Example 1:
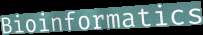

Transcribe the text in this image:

Bioinformatics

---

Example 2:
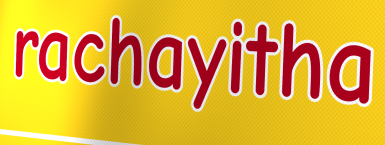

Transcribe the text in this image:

rachayitha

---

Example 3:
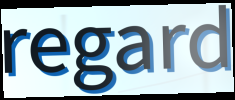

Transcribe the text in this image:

regard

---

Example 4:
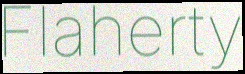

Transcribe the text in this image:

Flaherty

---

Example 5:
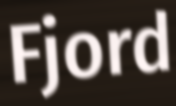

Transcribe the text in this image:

Fjord